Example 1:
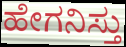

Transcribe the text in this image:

ಹೇಗನಿಸ್ತು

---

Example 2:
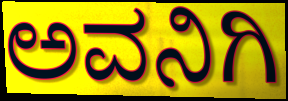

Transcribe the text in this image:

ಅವನಿಗಿ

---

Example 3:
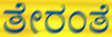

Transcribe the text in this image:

ತೇರಂತೆ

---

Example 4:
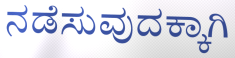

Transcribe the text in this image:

ನಡೆಸುವುದಕ್ಕಾಗಿ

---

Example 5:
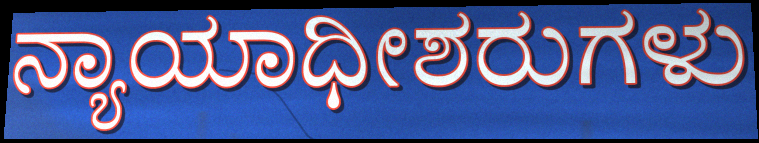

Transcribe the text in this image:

ನ್ಯಾಯಾಧೀಶರುಗಳು